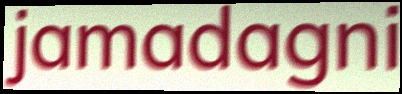
jamadagni